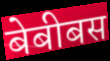
बेबीबस